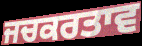
ਜਚਕਰਤਾਵ